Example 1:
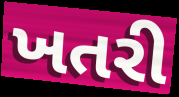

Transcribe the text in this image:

ખતરી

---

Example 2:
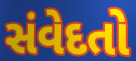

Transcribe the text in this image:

સંવેદતો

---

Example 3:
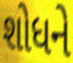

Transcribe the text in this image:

શોધને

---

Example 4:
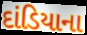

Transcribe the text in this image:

દાંડિયાના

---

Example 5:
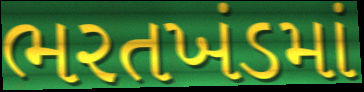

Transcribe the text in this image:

ભરતખંડમાં